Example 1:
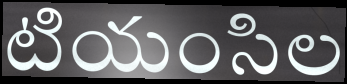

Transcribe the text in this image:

టియంసిల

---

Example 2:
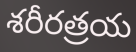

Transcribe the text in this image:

శరీరత్రయ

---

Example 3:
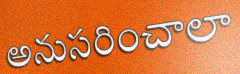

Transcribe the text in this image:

అనుసరించాలా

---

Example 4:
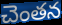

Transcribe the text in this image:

చెంతన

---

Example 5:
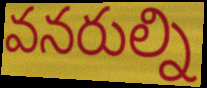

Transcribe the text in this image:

వనరుల్ని